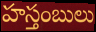
హస్తంబులు